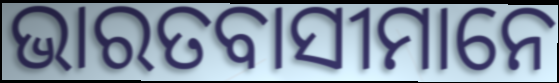
ଭାରତବାସୀମାନେ